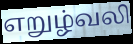
எறுழ்வலி